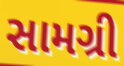
સામગ્રી